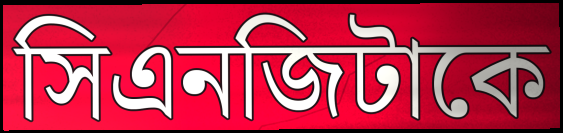
সিএনজিটাকে